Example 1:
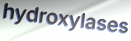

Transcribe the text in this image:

hydroxylases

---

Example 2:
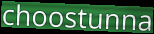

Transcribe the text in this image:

choostunna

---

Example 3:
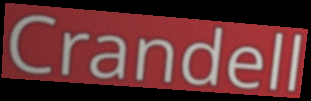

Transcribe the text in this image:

Crandell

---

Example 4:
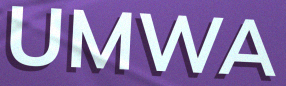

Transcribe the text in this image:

UMWA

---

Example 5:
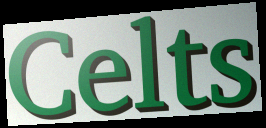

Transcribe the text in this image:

Celts